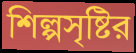
শিল্পসৃষ্টির